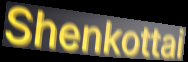
Shenkottai